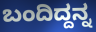
ಬಂದಿದ್ದನ್ನ